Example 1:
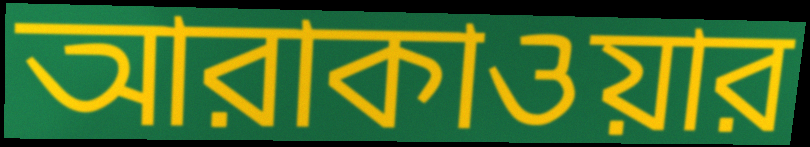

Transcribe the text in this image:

আরাকাওয়ার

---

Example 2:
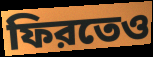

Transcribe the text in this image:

ফিরতেও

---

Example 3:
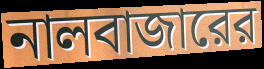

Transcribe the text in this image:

নালবাজারের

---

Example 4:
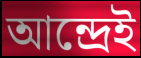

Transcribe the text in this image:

আন্দ্রেই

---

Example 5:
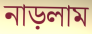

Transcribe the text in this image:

নাড়লাম